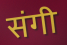
संगी